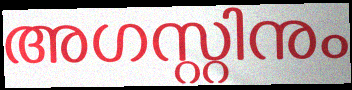
അഗസ്റ്റിനും